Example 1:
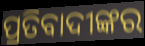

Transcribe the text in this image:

ପ୍ରତିବାଦୀଙ୍କର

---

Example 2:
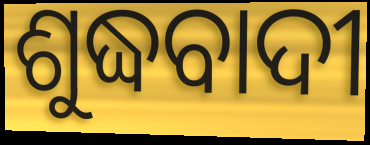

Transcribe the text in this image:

ଶୁଦ୍ଧବାଦୀ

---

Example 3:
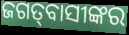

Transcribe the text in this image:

ଜଗତ୍‍ବାସୀଙ୍କର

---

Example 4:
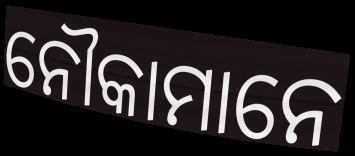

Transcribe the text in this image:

ନୌକାମାନେ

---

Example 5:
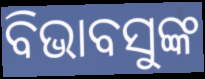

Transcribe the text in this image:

ବିଭାବସୁଙ୍କ